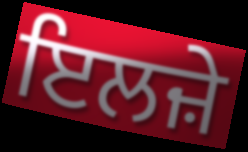
ਇਲਜ਼ੇ